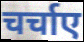
चर्चाए